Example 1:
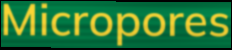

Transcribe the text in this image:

Micropores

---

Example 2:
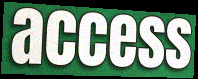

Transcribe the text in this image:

access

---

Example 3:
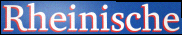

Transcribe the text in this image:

Rheinische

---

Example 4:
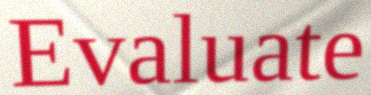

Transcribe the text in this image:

Evaluate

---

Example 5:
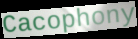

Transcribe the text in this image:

Cacophony